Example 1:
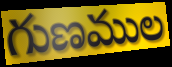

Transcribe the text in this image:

గుణముల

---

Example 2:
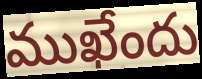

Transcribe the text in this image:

ముఖేందు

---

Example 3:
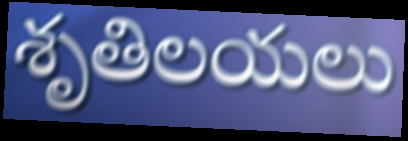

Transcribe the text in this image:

శృతిలయలు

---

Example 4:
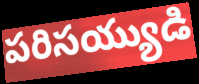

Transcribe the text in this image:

పరిసయ్యుడి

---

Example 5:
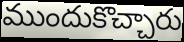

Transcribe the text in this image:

ముందుకొచ్చారు